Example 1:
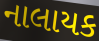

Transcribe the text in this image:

નાલાયક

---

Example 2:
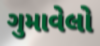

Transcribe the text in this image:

ગુમાવેલો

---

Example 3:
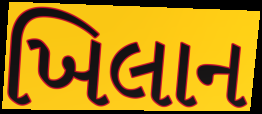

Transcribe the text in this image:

ખિલાન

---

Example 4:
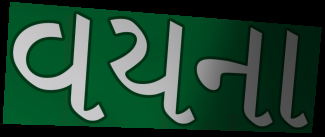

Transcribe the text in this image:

વયના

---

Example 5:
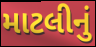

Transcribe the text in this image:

માટલીનું